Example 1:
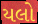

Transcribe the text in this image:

યલો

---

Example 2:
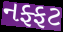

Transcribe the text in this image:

નફ્ફટ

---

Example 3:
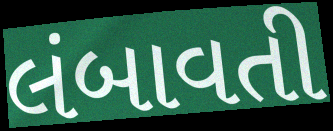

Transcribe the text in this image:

લંબાવતી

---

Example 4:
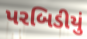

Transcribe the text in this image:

પરબિડીયું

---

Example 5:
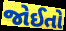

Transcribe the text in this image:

જોઈતો